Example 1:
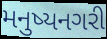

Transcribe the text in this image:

મનુષ્યનગરી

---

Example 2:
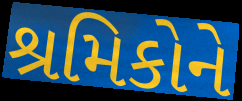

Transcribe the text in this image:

શ્રમિકોને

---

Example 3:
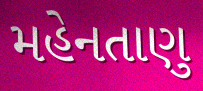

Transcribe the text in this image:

મહેનતાણુ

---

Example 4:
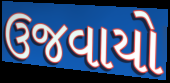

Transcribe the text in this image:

ઉજવાયો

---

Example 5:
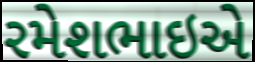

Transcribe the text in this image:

રમેશભાઇએ